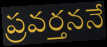
ప్రవర్తననే